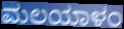
ಮಲಯಾಳಂ